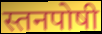
स्तनपोषी